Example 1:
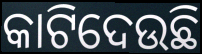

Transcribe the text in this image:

କାଟିଦେଉଛି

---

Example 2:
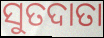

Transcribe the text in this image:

ସୁତଦାତା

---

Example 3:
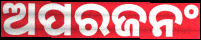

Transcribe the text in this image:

ଅପରଜନଂ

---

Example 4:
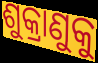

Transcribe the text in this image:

ଶୁକ୍ରାଣୁକୁ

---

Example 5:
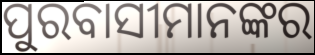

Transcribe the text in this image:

ପୁରବାସୀମାନଙ୍କର